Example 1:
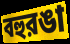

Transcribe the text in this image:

বহুরঙা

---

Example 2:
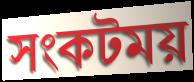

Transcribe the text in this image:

সংকটময়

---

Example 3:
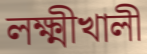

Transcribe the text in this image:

লক্ষ্মীখালী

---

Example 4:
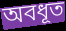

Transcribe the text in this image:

অবধূত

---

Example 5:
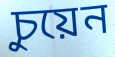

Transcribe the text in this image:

চুয়েন